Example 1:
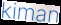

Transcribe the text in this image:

kiman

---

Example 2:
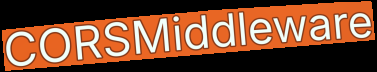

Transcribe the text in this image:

CORSMiddleware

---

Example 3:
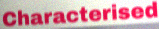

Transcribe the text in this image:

Characterised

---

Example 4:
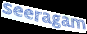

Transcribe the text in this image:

seeragam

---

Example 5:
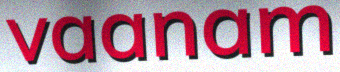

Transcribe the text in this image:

vaanam